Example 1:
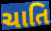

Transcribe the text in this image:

ચાતિ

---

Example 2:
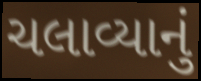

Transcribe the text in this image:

ચલાવ્યાનું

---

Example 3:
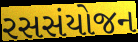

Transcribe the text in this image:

રસસંયોજન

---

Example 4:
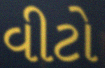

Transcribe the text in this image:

વીટો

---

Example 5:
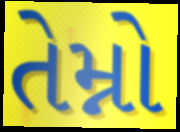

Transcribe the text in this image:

તેમ્નો